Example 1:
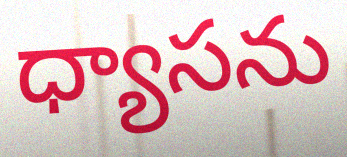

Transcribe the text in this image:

ధ్యాసను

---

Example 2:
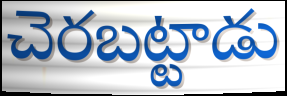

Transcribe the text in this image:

చెరబట్టాడు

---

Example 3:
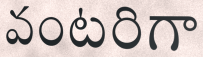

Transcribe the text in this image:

వంటరిగా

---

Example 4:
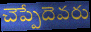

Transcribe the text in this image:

చెప్పేదెవరు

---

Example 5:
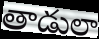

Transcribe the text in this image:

తాడులా